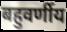
बहुवर्णीय